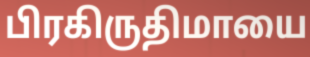
பிரகிருதிமாயை